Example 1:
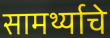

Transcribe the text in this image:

सामर्थ्याचे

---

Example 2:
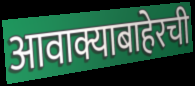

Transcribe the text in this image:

आवाक्याबाहेरची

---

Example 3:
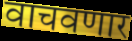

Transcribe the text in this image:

वाचवणार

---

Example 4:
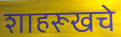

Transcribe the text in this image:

शाहरूखचे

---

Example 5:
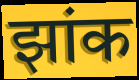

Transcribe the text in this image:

झांक